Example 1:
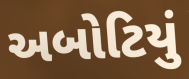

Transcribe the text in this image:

અબોટિયું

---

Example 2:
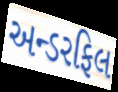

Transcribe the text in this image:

અન્ડરફિલ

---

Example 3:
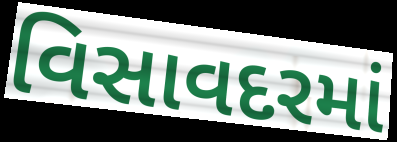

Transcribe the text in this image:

વિસાવદરમાં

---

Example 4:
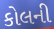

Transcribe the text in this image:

કોલની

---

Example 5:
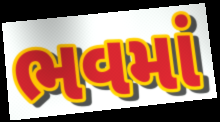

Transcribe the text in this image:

ભવમાં